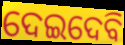
ଦେଇଦେବି